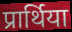
प्रार्थिया